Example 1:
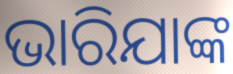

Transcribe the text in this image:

ଭାରିଯାଙ୍କ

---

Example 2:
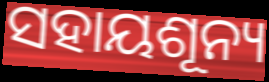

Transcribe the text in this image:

ସହାୟଶୂନ୍ୟ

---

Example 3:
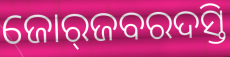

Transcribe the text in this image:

ଜୋର୍‍ଜବରଦସ୍ତି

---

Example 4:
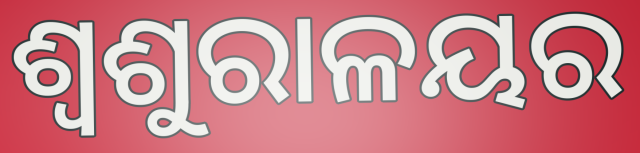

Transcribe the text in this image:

ଶ୍ୱଶୁରାଳୟର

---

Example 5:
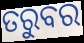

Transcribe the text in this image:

ତରୁବର